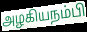
அழகியநம்பி